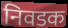
निवडक